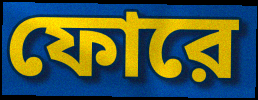
ফোরে